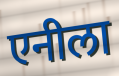
एनीला